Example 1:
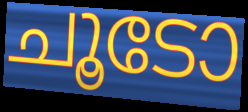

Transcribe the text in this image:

ചൂടോ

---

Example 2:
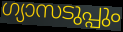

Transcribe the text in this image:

ഗ്യാസടുപ്പും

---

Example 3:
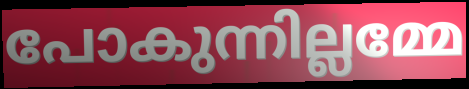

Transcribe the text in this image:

പോകുന്നില്ലമ്മേ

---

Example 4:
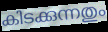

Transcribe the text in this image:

കിടക്കുന്നതും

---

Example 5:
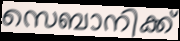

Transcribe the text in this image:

സെബാനിക്ക്